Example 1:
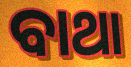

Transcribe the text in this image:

ବାଥା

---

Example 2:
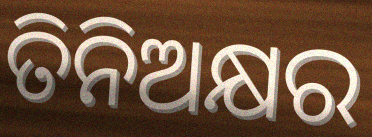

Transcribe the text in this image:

ତିନିଅକ୍ଷର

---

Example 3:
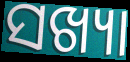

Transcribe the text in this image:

ସଖ୍ୟା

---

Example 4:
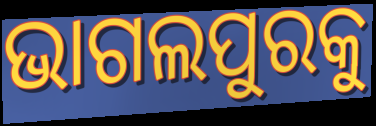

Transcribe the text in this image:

ଭାଗଲପୁରକୁ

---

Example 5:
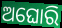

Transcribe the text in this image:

ଅଘୋରି